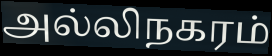
அல்லிநகரம்